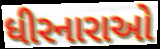
ધીરનારાઓ